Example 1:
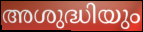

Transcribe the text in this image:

അശുദ്ധിയും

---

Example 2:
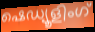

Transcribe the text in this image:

ഷെഡ്യൂളിംഗ്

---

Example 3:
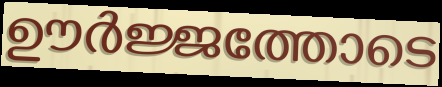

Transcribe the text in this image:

ഊർജ്ജത്തോടെ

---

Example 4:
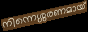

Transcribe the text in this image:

നിന്നെശ്ശരണമായ്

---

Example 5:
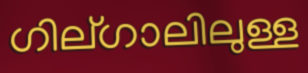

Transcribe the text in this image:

ഗില്ഗാലിലുള്ള